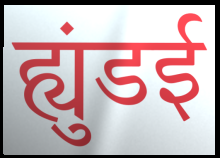
ह्युंडई